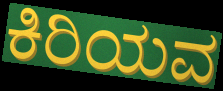
ಕಿರಿಯವ